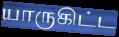
யாருகிட்ட